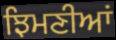
ਝਿਮਣੀਆਂ